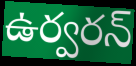
ఉర్వరన్